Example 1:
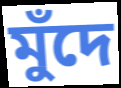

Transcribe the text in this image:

মুঁদে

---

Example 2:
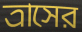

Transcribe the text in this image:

ত্রাসের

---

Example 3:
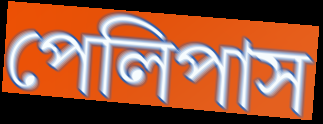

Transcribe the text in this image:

পেলিপাস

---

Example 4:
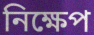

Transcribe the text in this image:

নিক্ষেপ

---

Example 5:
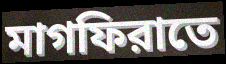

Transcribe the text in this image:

মাগফিরাতে